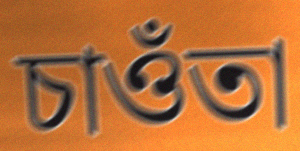
চাওঁতা